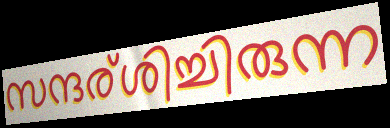
സന്ദര്ശിച്ചിരുന്ന